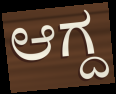
ಆಗ್ದ